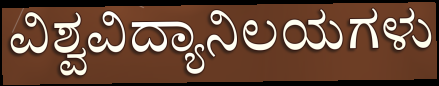
ವಿಶ್ವವಿದ್ಯಾನಿಲಯಗಳು